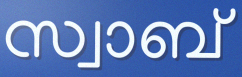
സ്വാബ്